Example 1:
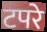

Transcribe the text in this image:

टपरे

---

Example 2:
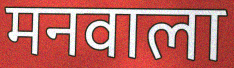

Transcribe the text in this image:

मनवाला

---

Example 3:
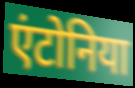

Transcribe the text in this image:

एंटोनिया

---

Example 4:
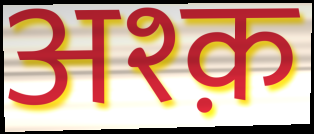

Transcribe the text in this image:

अश्क़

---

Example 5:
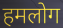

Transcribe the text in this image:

हमलोग